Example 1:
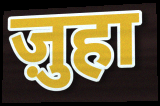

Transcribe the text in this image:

ज़ुहा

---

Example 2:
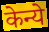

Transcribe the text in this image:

केन्ये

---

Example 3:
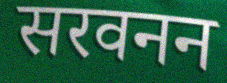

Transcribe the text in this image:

सरवनन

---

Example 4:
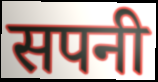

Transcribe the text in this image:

सपनी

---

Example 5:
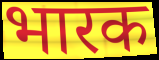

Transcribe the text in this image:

भारक